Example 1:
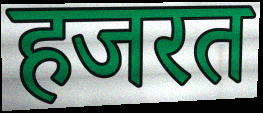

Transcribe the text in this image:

हजरत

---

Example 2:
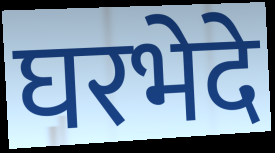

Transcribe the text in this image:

घरभेदे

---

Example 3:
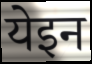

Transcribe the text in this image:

येइन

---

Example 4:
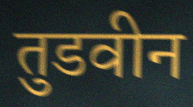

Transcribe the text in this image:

तुडवीन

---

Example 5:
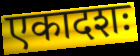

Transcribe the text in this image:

एकादशः